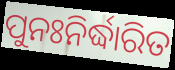
ପୁନଃନିର୍ଦ୍ଧାରିତ